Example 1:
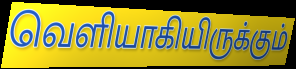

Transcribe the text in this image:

வெளியாகியிருக்கும்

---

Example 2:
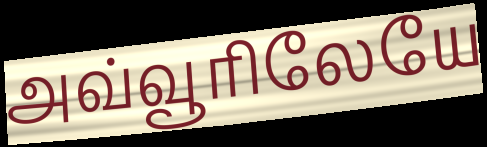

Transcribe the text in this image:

அவ்வூரிலேயே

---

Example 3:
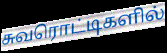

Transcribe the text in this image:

சுவரொட்டிகளில்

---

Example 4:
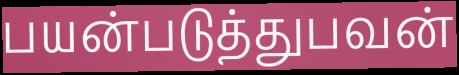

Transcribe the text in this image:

பயன்படுத்துபவன்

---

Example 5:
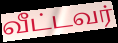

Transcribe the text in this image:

வீட்டவர்